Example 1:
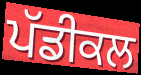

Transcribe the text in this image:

ਪੱਡੀਕਲ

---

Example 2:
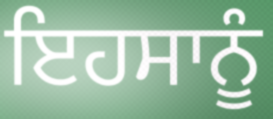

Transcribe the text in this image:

ਇਹਸਾਨੂੰ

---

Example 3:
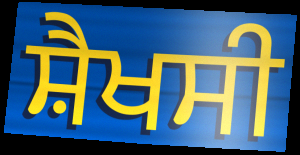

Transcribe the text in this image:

ਸ਼ੈਖਸੀ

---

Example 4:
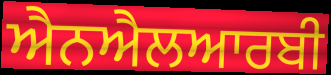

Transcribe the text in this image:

ਐਨਐਲਆਰਬੀ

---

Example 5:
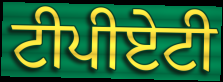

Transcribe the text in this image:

ਟੀਪੀਏਟੀ